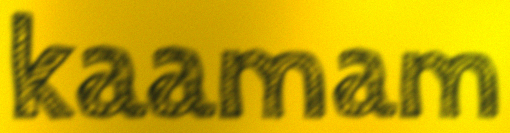
kaamam